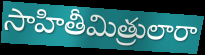
సాహితీమిత్రులారా